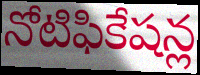
నోటిఫికేషన్ల